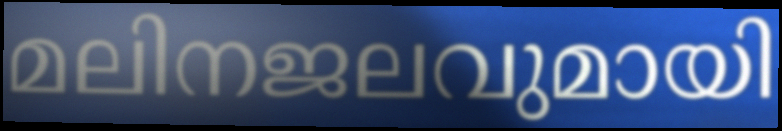
മലിനജലവുമായി